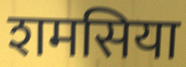
शमसिया